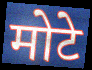
मोटे